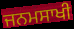
ਜਨਮਸਾਖੀ